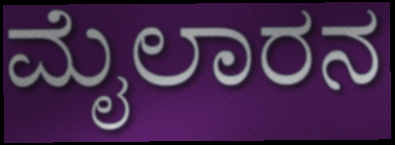
ಮೈಲಾರನ